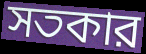
সতকার